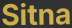
Sitna